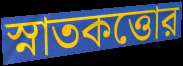
স্নাতকত্তোর